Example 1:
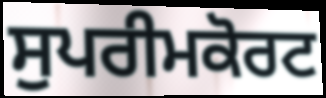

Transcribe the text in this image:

ਸੁਪਰੀਮਕੋਰਟ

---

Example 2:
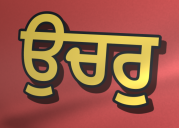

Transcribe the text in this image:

ਉਚਰੁ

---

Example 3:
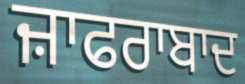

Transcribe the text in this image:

ਜ਼ਾਫਰਾਬਾਦ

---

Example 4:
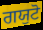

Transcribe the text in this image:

ਗਯੁਟੋ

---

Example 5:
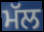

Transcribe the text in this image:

ਮੱਲ